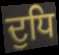
ਦੁਧਿ